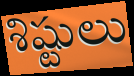
శిష్టులు